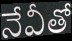
నేవీతో